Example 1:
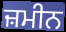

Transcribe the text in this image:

ਜ਼ਮੀਨ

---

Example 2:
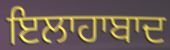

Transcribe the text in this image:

ਇਲਾਹਾਬਾਦ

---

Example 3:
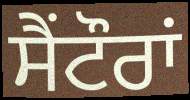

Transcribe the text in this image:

ਸੈਂਟੌਰਾਂ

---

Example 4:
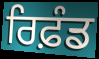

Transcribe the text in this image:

ਰਿਫ਼ੰਡ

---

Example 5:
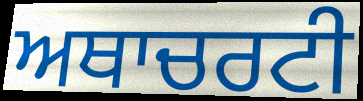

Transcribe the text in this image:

ਅਥਾਚਰਟੀ